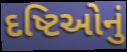
દષ્ટિઓનું